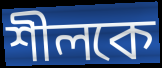
শীলকে